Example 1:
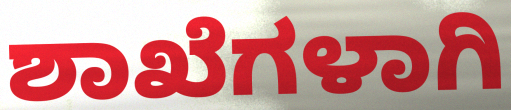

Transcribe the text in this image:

ಶಾಖೆಗಳಾಗಿ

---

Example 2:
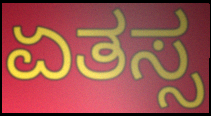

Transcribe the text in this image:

ಏತಸ್ಸ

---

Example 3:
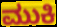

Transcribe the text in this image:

ಮುಕಿ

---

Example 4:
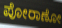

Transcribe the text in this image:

ಪೋರಾಣೋ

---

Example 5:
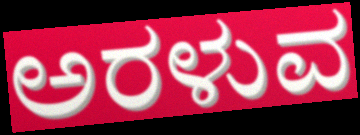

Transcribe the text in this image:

ಅರಳುವ